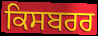
ਕਿਸਬਰਰ